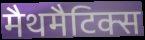
मैथमैटिक्स